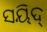
ସୟିଦ୍